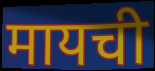
मायची